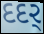
દદર્